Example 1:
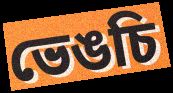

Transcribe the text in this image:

ভেঙচি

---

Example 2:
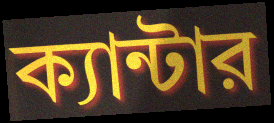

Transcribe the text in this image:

ক্যান্টার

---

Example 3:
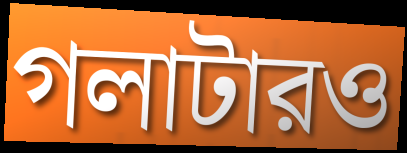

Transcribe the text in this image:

গলাটারও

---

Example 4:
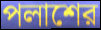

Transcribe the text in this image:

পলাশের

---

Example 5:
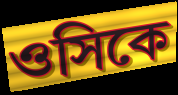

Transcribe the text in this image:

ওসিকে